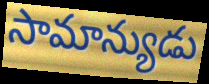
సామాన్యుడు